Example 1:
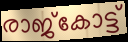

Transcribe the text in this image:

രാജ്കോട്ട്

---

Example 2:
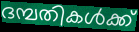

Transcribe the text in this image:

ദമ്പതികൾക്ക്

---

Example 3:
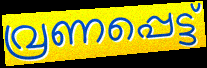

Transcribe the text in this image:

വ്രണപ്പെട്ട്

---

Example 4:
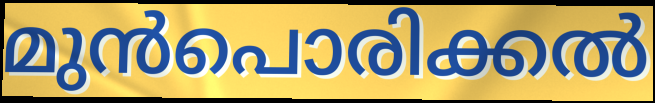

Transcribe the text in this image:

മുൻപൊരിക്കൽ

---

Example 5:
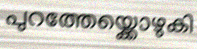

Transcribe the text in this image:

പുറത്തേയ്ക്കൊഴുകി